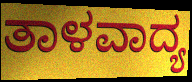
ತಾಳವಾದ್ಯ